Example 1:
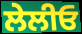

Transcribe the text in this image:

ਲੇਲੀਓ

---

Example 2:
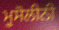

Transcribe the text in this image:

ਮੂਸੋਲੀਨੀ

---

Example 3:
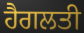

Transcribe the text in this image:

ਹੈਗਲਤੀ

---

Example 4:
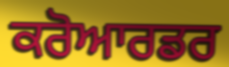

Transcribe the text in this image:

ਕਰੋਆਰਡਰ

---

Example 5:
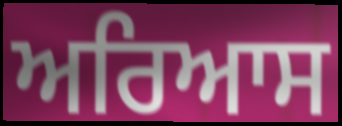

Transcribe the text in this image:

ਅਰਿਆਸ